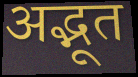
अद्भूत